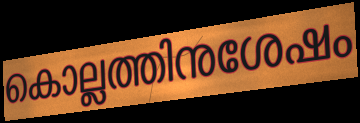
കൊല്ലത്തിനുശേഷം